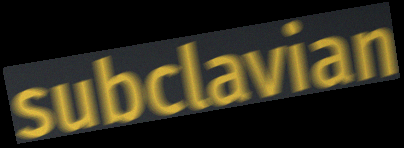
subclavian